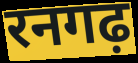
रनगढ़